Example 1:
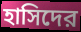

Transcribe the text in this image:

হাসিদের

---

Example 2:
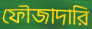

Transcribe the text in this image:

ফৌজাদারি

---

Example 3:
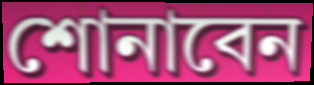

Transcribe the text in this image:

শোনাবেন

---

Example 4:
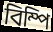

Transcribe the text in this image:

বিম্পি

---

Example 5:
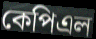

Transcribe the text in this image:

কেপিএল